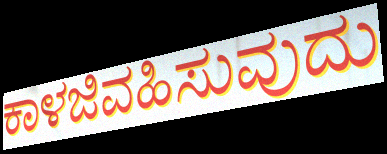
ಕಾಳಜಿವಹಿಸುವುದು